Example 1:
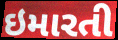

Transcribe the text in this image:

ઇમારતી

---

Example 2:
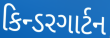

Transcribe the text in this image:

કિન્ડરગાર્ટન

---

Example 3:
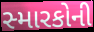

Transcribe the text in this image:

સ્મારકોની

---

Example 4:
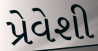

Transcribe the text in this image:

પ્રેવેશી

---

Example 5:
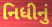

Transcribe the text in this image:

નિધીનું